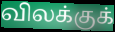
விலக்குக்